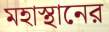
মহাস্থানের